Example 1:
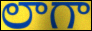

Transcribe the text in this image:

లాగా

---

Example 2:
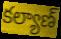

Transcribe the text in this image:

కల్యాణ్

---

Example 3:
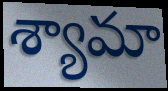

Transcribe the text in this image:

శ్యామా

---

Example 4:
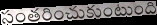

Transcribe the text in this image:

సంతరించుకుంటుంది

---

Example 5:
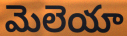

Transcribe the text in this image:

మెలెయా